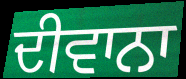
ਦੀਵਾਨਾ